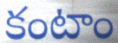
కంటాం